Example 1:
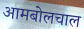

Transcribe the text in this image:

आमबोलचाल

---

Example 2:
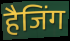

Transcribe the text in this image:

हैजिंग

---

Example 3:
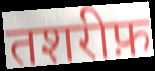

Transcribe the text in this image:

तशरीफ़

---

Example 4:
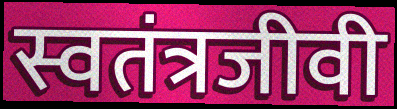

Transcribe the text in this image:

स्वतंत्रजीवी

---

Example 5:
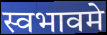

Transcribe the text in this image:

स्वभावमे